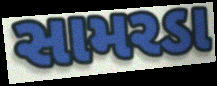
સામરડા